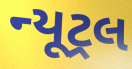
ન્યૂટ્રલ